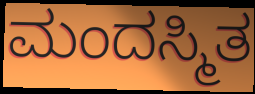
ಮಂದಸ್ಮಿತ